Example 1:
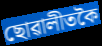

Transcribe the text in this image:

ছোৱালীতকৈ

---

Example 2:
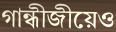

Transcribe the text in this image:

গান্ধীজীয়েও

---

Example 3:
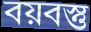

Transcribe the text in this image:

বয়বস্তু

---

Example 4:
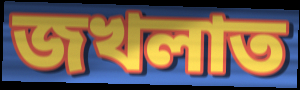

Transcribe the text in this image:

জখলাত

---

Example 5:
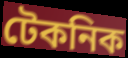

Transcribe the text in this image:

টেকনিক